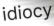
idiocy